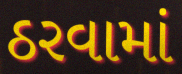
ઠરવામાં